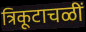
त्रिकूटाचळीं